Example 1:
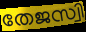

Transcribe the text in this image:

തേജസ്വി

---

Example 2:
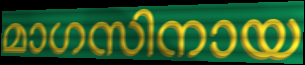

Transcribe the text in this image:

മാഗസിനായ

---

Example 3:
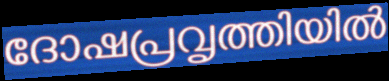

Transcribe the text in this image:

ദോഷപ്രവൃത്തിയിൽ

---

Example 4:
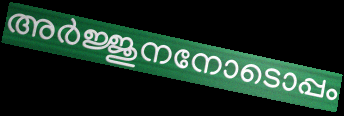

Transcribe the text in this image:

അർജ്ജുനനോടൊപ്പം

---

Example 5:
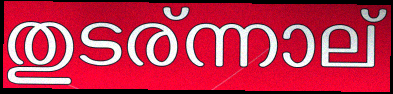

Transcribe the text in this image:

തുടര്ന്നാല്